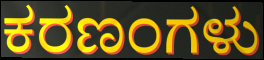
ಕರಣಂಗಳು